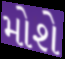
મોશે